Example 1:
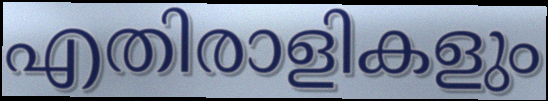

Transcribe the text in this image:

എതിരാളികളും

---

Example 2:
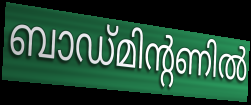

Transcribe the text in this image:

ബാഡ്മിന്റണിൽ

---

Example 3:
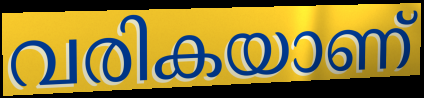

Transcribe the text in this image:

വരികയാണ്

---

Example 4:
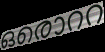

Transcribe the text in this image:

ഒരൊററ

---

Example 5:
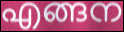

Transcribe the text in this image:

എങ്ങന